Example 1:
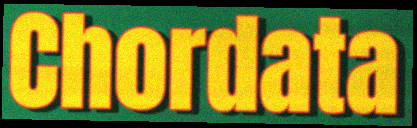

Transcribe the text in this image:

Chordata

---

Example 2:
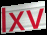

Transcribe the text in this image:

lxv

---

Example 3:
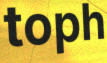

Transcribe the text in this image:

toph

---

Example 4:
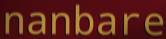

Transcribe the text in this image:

nanbare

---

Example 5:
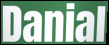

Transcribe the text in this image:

Danial